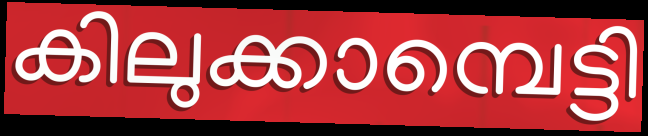
കിലുക്കാമ്പെട്ടി